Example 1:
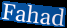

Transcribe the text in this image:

Fahad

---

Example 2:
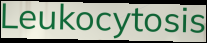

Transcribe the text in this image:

Leukocytosis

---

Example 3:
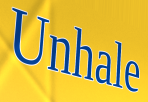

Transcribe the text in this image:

Unhale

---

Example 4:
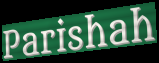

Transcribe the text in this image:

Parishah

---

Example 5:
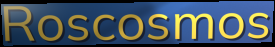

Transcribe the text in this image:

Roscosmos